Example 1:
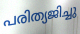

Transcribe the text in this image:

പരിത്യജിച്ചു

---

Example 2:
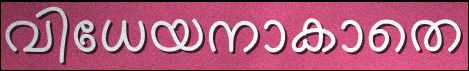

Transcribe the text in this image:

വിധേയനാകാതെ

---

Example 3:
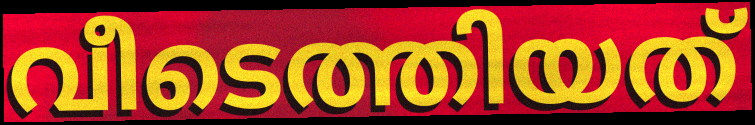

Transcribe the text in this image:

വീടെത്തിയത്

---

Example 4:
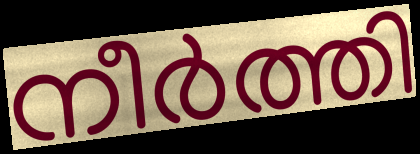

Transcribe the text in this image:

നീർത്തി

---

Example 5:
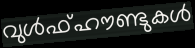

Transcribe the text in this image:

വുൾഫ്ഹൗണ്ടുകൾ